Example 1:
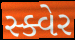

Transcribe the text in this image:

સ્ક્વેર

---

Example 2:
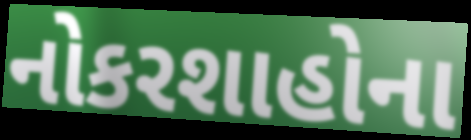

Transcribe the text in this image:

નોકરશાહોના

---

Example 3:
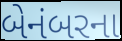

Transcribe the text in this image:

બેનંબરના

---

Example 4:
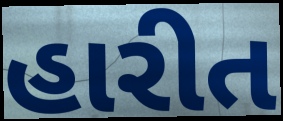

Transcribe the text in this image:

હારીત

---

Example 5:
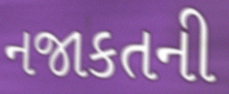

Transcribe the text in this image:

નજાકતની